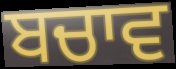
ਬਚਾਵ